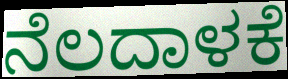
ನೆಲದಾಳಕೆ